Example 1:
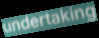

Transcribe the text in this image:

undertaking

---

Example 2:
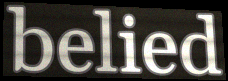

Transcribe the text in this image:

belied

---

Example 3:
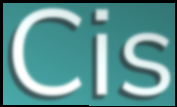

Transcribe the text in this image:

Cis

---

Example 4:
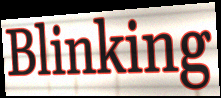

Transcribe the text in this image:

Blinking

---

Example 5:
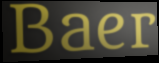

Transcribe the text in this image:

Baer